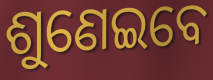
ଶୁଣେଇବେ